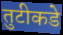
तुटीकडे